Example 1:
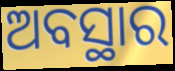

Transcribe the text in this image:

ଅବସ୍ଥାର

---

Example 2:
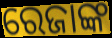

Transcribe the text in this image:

ରେଜାଙ୍କ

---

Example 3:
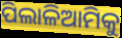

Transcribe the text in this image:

ପିଲାଳିଆମିକୁ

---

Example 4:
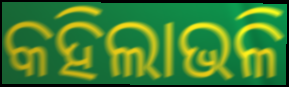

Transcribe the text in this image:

କହିଲାଭଳି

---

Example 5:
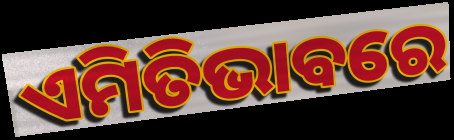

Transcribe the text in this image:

ଏମିତିଭାବରେ